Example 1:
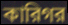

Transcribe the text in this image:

কারিগর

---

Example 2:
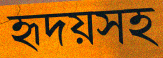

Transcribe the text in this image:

হৃদয়সহ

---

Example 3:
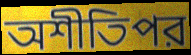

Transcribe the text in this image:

অশীতিপর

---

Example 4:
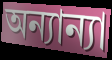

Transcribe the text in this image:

অন্যান্যা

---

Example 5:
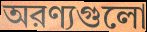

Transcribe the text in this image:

অরণ্যগুলো